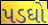
પડઘો